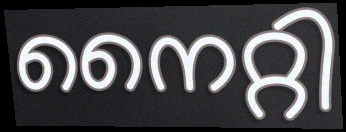
നൈറ്റി